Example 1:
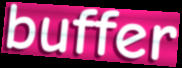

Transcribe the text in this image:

buffer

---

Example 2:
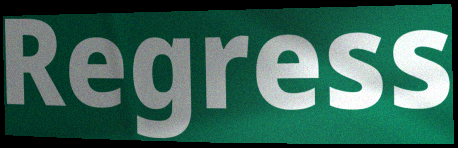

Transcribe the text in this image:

Regress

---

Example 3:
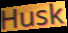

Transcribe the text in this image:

Husk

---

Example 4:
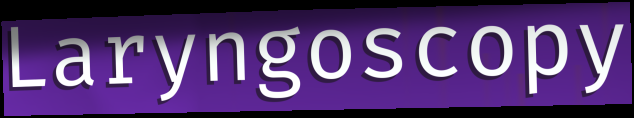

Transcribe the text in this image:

Laryngoscopy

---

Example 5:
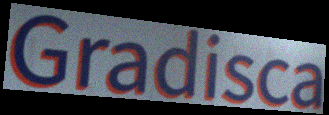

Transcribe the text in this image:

Gradisca